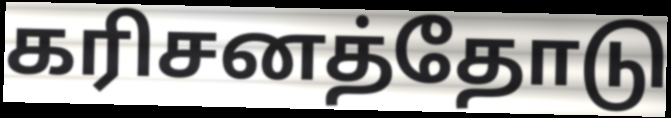
கரிசனத்தோடு